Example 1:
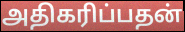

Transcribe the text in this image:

அதிகரிப்பதன்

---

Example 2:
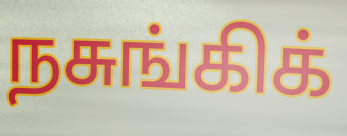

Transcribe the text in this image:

நசுங்கிக்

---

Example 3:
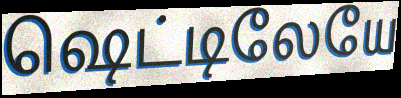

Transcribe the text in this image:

ஷெட்டிலேயே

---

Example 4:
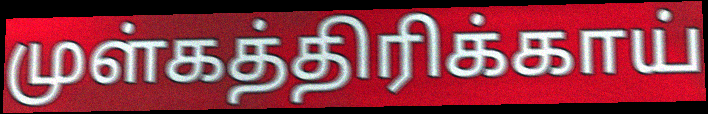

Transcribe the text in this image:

முள்கத்திரிக்காய்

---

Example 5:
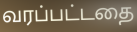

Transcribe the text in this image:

வரப்பட்டதை